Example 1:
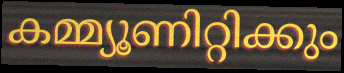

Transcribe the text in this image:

കമ്മ്യൂണിറ്റിക്കും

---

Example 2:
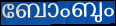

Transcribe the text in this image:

ബോംബും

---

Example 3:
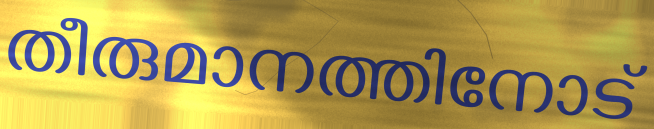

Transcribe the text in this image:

തീരുമാനത്തിനോട്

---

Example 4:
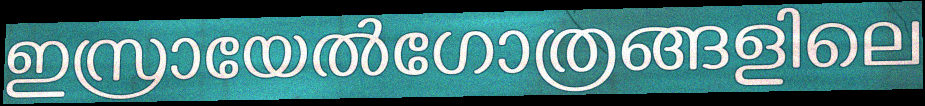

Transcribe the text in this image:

ഇസ്രായേൽഗോത്രങ്ങളിലെ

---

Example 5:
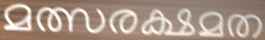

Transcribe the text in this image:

മത്സരക്ഷമത